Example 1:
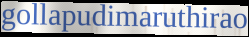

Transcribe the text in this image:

gollapudimaruthirao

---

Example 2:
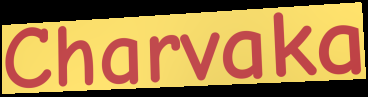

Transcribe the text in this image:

Charvaka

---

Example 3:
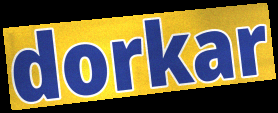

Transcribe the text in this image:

dorkar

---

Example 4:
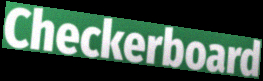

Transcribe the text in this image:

Checkerboard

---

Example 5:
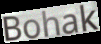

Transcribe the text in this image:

Bohak